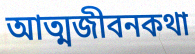
আত্মজীবনকথা